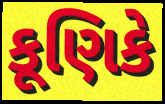
કૂણિકે